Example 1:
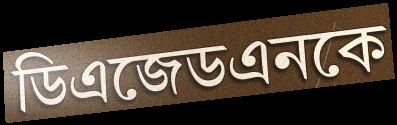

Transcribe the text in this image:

ডিএজেডএনকে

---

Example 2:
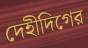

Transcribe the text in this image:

দেহীদিগের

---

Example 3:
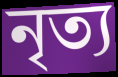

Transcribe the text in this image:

নৃত্য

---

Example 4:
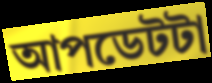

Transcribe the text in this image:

আপডেটটা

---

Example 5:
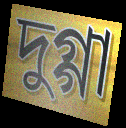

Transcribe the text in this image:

দুগ্গা